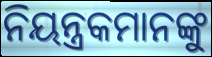
ନିୟନ୍ତ୍ରକମାନଙ୍କୁ